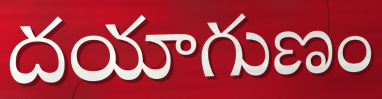
దయాగుణం